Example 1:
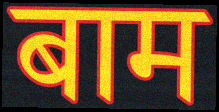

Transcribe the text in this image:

बाम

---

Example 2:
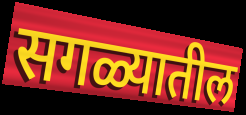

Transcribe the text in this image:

सगळ्यातील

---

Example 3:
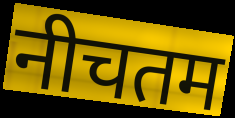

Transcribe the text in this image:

नीचतम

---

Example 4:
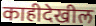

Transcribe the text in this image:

काहीदेखील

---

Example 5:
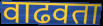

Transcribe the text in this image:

वाढवता